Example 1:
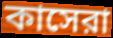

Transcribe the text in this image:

কাসেরা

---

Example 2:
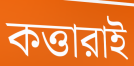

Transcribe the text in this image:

কত্তারাই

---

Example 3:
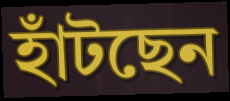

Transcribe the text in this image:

হাঁটছেন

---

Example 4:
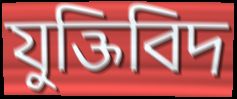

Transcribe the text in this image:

যুক্তিবিদ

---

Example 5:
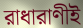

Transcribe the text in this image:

রাধারাণীই